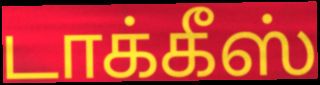
டாக்கீஸ்